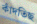
কাঁদতিছ